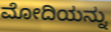
ಮೋದಿಯನ್ನು